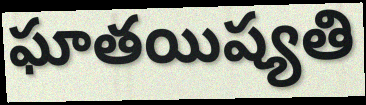
ఘాతయిష్యతి